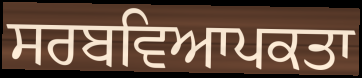
ਸਰਬਵਿਆਪਕਤਾ